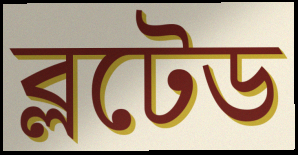
ব্লটেড